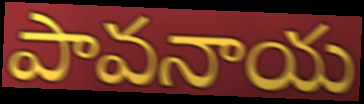
పావనాయ